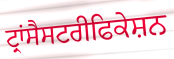
ਟ੍ਰਾਂਸੈਸਟਰੀਫਿਕੇਸ਼ਨ